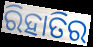
ରିହାତିର